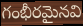
గంభీరమైనవి